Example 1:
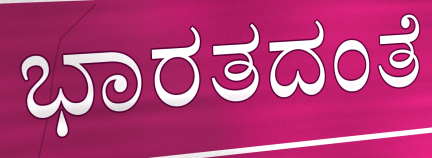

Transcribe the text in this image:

ಭಾರತದಂತೆ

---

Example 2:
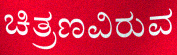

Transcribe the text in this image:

ಚಿತ್ರಣವಿರುವ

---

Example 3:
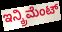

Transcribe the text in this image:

ಇನ್ಕ್ರಿಮೆಂಟ್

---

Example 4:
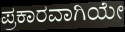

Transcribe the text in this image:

ಪ್ರಕಾರವಾಗಿಯೇ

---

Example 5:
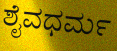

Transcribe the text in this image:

ಶೈವಧರ್ಮ